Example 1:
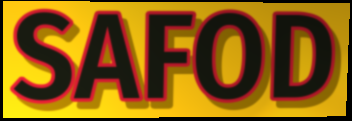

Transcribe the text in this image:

SAFOD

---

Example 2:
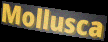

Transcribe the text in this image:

Mollusca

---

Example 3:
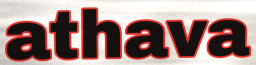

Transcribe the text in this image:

athava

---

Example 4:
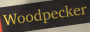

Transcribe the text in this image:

Woodpecker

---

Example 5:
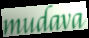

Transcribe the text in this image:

mudava